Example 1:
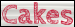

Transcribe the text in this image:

Cakes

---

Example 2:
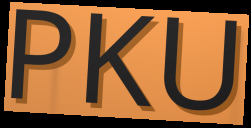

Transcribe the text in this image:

PKU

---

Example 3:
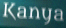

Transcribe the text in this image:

Kanya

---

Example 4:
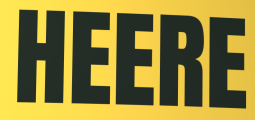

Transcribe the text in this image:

HEERE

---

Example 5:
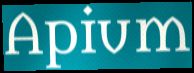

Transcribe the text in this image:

Apium